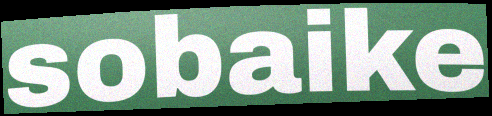
sobaike